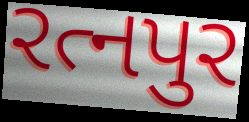
રત્નપુર